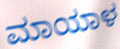
ಮಾಯಾಳ